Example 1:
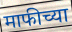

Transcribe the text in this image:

माफीच्या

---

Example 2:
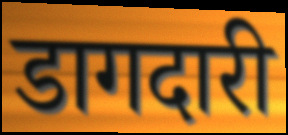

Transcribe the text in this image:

डागदारी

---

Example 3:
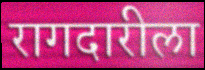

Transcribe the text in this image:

रागदारीला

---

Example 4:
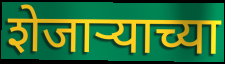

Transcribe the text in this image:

शेजार्‍याच्या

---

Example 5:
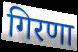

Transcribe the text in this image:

गिरणा